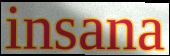
insana